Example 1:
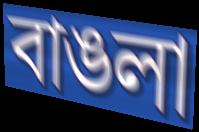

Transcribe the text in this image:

বাঙলা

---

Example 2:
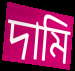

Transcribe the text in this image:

দামি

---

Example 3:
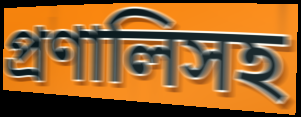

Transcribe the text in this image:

প্রণালিসহ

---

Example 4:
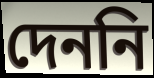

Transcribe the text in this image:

দেননি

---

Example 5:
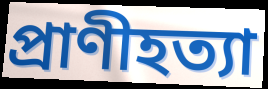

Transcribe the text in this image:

প্রাণীহত্যা